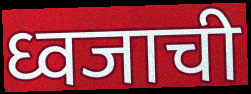
ध्वजाची